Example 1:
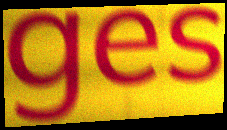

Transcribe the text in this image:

ges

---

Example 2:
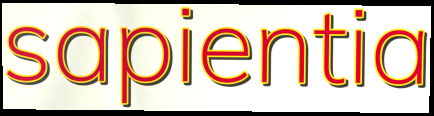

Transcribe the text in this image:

sapientia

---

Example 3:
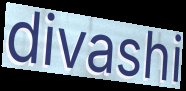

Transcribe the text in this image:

divashi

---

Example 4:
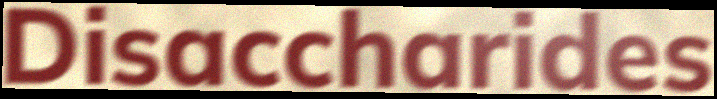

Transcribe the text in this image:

Disaccharides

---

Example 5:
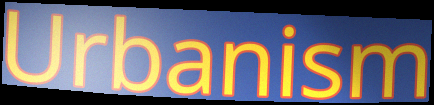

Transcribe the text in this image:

Urbanism